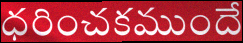
ధరించకముందే